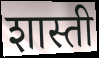
शास्ती